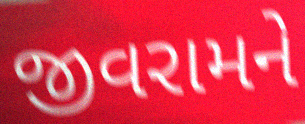
જીવરામને